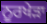
ਨੂਰਖੇੜਾ